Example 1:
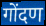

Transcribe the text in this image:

गोंदण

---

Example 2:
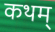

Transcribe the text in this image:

कथम्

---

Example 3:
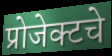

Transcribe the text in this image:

प्रोजेक्टचे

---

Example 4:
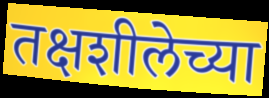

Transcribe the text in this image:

तक्षशीलेच्या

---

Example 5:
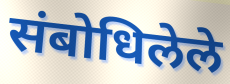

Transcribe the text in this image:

संबोधिलेले